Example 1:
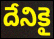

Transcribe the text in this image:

దేనికై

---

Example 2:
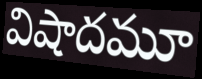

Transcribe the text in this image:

విషాదమూ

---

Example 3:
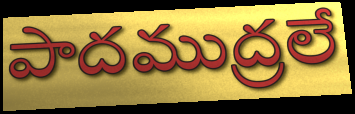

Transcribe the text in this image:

పాదముద్రలే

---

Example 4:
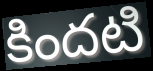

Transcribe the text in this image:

కిందటి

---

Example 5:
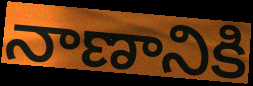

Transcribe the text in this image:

నాణానికి